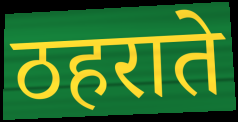
ठहराते